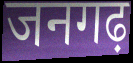
जनगढ़